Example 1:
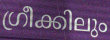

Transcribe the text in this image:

ഗ്രീക്കിലും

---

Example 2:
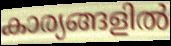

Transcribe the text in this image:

കാര്യങ്ങളിൽ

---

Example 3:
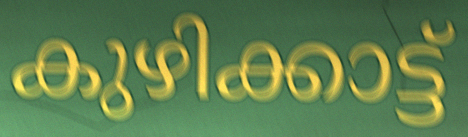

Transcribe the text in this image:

കുഴിക്കാട്ട്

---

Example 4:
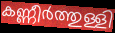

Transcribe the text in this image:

കണ്ണീർത്തുള്ളി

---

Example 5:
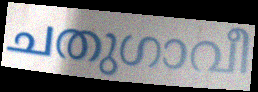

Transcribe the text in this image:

ചതുഗാവീ